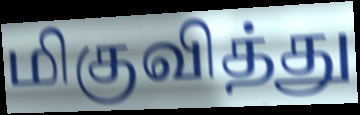
மிகுவித்து